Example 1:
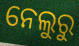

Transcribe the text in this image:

ନେଲୁରୁ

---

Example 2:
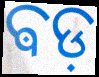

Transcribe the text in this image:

ଵଡ଼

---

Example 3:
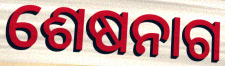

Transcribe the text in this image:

ଶେଷନାଗ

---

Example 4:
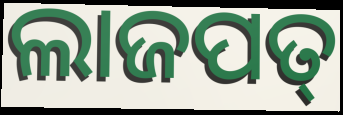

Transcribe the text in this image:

ଲାଜପତ୍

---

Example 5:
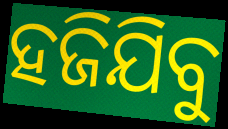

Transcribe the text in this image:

ହଜିଯିବୁ